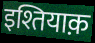
इश्तियाक़